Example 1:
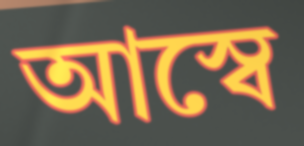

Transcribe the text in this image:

আস্বে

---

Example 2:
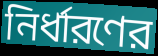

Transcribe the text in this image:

নির্ধারণের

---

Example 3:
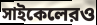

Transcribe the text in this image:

সাইকেলেরও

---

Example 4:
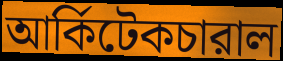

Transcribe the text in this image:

আর্কিটেকচারাল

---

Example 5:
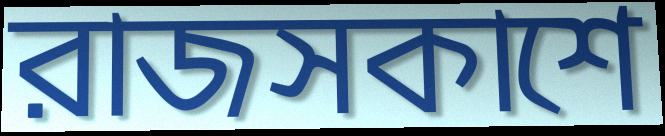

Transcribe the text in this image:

রাজসকাশে